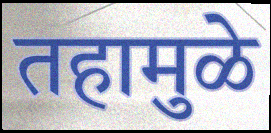
तहामुळे